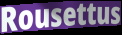
Rousettus